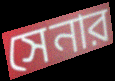
সেনার